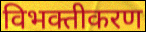
विभक्तीकरण